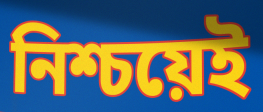
নিশ্চয়েই